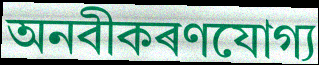
অনবীকৰণযোগ্য